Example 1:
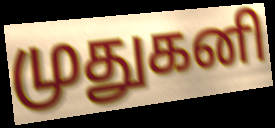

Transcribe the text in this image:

முதுகனி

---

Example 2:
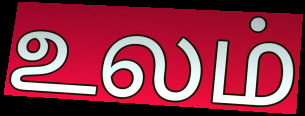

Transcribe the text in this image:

உலம்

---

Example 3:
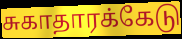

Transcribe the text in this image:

சுகாதாரக்கேடு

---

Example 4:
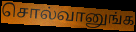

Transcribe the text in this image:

சொல்வானுங்க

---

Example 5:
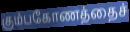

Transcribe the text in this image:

கும்பகோணத்தைச்